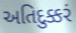
અતિદુક્કરં